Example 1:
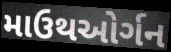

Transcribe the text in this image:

માઉથઓર્ગન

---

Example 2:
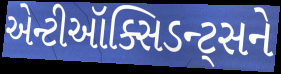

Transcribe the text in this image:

એન્ટીઑક્સિડન્ટ્સને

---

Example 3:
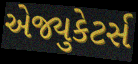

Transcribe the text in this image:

એજ્યુકેટર્સ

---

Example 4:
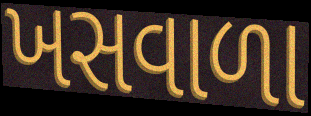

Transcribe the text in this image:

ખસવાળા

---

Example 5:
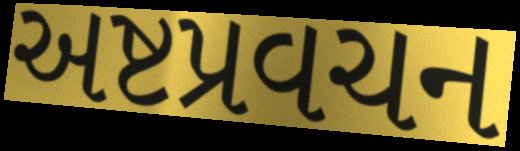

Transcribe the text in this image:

અષ્ટપ્રવચન